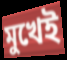
মুখেই